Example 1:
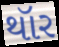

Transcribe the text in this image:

થૉર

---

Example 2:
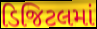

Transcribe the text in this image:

ડિજિટલમાં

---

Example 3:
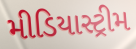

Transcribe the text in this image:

મીડિયાસ્ટ્રીમ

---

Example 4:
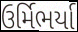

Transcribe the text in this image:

ઉર્મિભર્યા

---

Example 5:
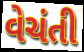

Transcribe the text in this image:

વેચંતી